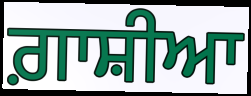
ਗ਼ਾਸ਼ੀਆ